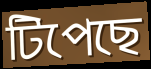
টিপেছে